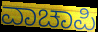
ವಾಚಾಪಿ